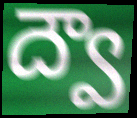
ద్వౌ